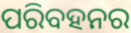
ପରିବହନର